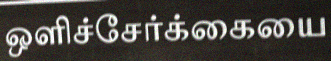
ஒளிச்சேர்க்கையை